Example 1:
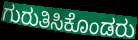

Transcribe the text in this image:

ಗುರುತಿಸಿಕೊಂಡರು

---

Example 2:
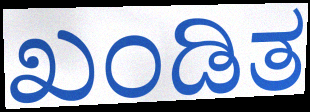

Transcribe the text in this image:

ಖಂಡಿತ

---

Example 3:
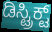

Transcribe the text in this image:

ಡಿಸ್ಟ್ರಿಕ್ಟ್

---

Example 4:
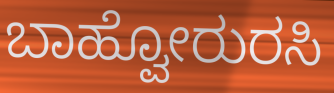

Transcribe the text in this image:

ಬಾಹ್ವೋರುರಸಿ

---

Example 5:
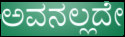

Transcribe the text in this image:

ಅವನಲ್ಲದೇ